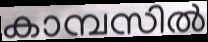
കാമ്പസിൽ